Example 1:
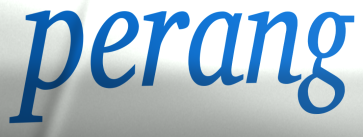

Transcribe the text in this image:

perang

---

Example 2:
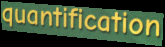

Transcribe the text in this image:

quantification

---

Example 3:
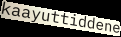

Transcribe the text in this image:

kaayuttiddene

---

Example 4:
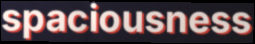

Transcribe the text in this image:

spaciousness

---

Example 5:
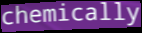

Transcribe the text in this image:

chemically